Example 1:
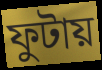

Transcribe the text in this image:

ফুটায়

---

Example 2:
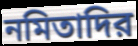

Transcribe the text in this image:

নমিতাদির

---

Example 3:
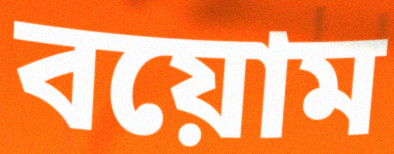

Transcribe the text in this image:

বয়োম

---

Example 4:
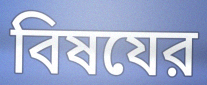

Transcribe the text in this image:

বিষযের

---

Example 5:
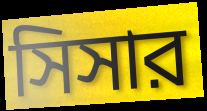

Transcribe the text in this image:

সিসার